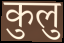
कुलु